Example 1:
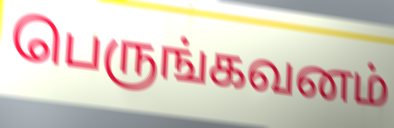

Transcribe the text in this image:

பெருங்கவனம்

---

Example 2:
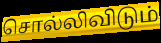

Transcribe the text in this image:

சொல்லிவிடும்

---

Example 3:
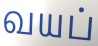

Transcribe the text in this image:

வயப்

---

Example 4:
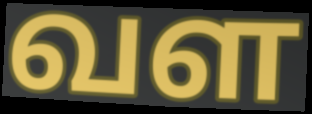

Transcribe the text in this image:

வள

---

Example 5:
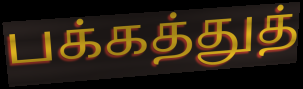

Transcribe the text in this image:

பக்கத்துத்